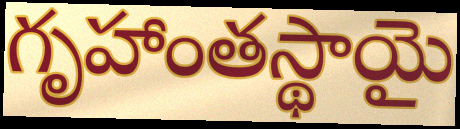
గృహాంతస్థాయై